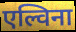
एल्विना